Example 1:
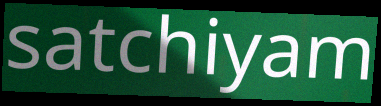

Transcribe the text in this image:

satchiyam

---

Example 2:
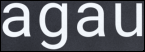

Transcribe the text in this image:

agau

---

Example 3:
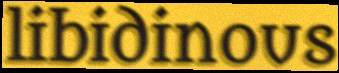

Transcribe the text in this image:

libidinous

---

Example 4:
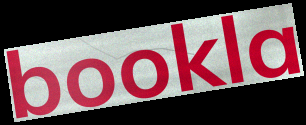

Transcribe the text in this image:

bookla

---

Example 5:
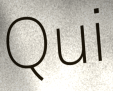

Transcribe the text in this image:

Qui